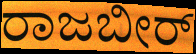
ರಾಜಬೀರ್